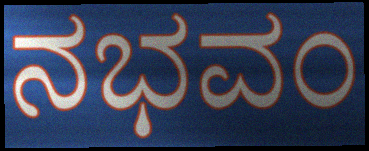
ನಭವಂ